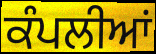
ਕੰਪਲੀਆਂ